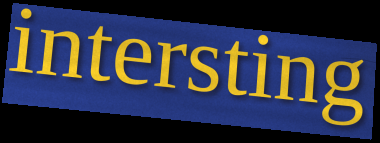
intersting